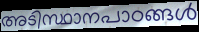
അടിസ്ഥാനപാഠങ്ങൾ